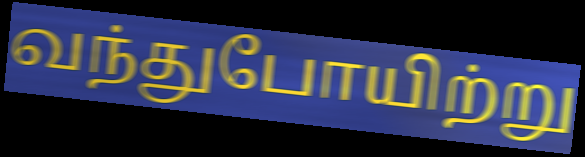
வந்துபோயிற்று